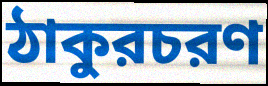
ঠাকুরচরণ